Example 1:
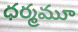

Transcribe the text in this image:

ధర్మమూ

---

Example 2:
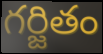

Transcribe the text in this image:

గర్జితం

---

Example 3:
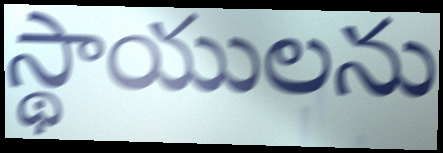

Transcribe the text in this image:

స్థాయులను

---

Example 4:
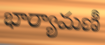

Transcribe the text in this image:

భార్యామణీ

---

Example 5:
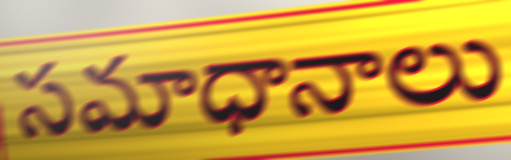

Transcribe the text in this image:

సమాధానాలు